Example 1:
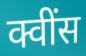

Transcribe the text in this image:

क्वींस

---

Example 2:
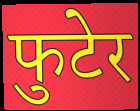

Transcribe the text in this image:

फुटेर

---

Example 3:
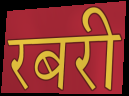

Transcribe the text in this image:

रबरी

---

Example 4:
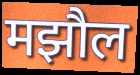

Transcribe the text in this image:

मझौल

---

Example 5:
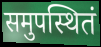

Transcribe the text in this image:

समुपस्थितं